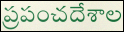
ప్రపంచదేశాల